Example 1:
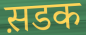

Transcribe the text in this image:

स़डक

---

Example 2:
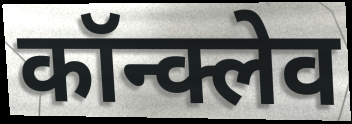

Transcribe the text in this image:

कॉन्क्लेव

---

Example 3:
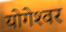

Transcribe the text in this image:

योगेश्‍वर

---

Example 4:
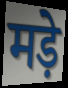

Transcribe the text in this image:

मड़े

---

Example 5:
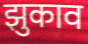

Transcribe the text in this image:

झुकाव